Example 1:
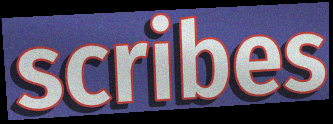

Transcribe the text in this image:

scribes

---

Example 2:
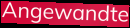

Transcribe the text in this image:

Angewandte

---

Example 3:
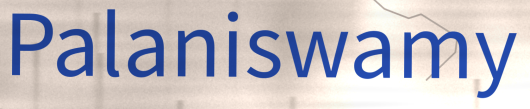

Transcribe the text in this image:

Palaniswamy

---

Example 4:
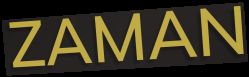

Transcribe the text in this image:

ZAMAN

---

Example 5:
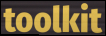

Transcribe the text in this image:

toolkit